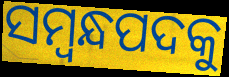
ସମ୍ବନ୍ଧପଦକୁ